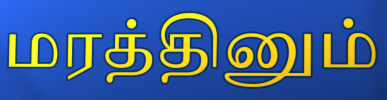
மரத்தினும்